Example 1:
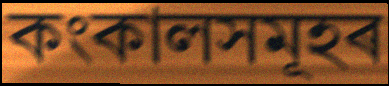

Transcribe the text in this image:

কংকালসমূহৰ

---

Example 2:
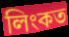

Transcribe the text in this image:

লিংকত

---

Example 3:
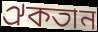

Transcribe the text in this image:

ঐকতান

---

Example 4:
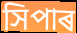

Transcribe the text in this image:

সিপাৰ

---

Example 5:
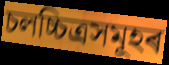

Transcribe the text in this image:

চলচ্চিত্ৰসমূহৰ